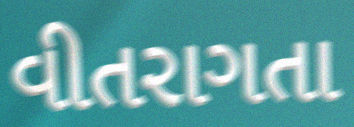
વીતરાગતા